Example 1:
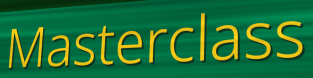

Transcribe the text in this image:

Masterclass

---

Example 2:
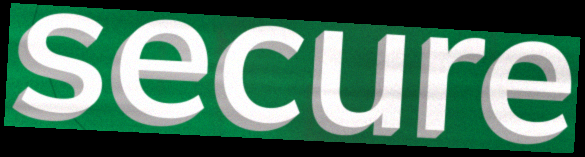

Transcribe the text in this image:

secure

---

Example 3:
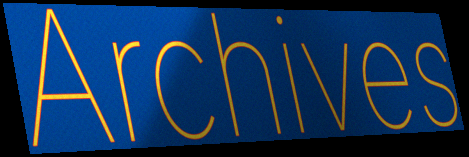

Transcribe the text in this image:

Archives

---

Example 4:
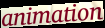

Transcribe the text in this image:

animation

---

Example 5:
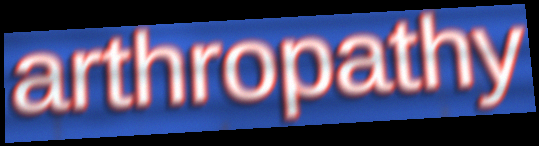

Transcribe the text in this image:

arthropathy